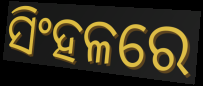
ସିଂହଳରେ